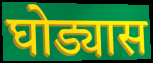
घोड्यास